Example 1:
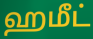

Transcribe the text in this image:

ஹமீட்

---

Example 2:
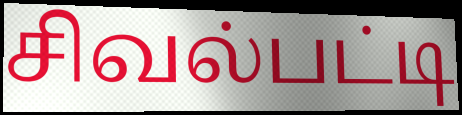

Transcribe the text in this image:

சிவல்பட்டி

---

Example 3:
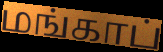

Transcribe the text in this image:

மங்காப்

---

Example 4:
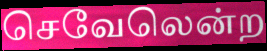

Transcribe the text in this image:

செவேலென்ற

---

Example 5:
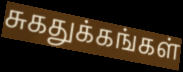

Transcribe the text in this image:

சுகதுக்கங்கள்